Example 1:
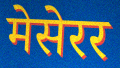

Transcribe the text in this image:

मेसेरर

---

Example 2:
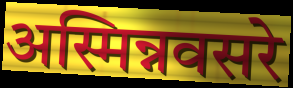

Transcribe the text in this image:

अस्मिन्नवसरे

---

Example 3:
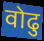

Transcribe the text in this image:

वोढु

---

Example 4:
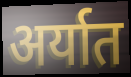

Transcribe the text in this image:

अर्यात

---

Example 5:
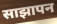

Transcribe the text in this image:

साझापन